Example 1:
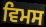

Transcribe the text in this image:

ਵਿਮਸ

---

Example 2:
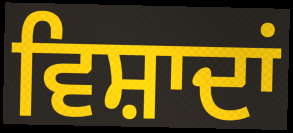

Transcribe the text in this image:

ਵਿਸ਼ਾਦਾਂ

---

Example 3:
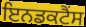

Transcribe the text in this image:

ਇਨਡਕਟੈਂਸ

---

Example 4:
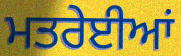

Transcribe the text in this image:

ਮਤਰੇਈਆਂ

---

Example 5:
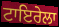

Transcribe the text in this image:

ਟਾਇਰੇਲਾ